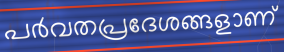
പർവതപ്രദേശങ്ങളാണ്